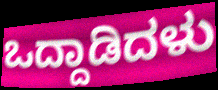
ಒದ್ದಾಡಿದಳು